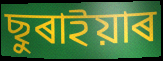
ছুৰাইয়াৰ